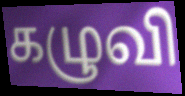
கழுவி